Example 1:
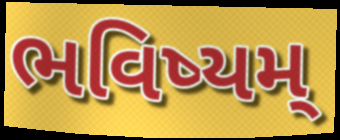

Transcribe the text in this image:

ભવિષ્યમ્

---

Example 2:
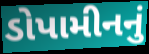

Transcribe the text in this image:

ડોપામીનનું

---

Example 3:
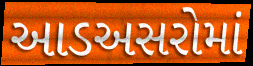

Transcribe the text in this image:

આડઅસરોમાં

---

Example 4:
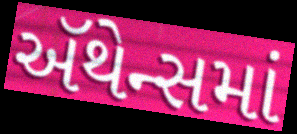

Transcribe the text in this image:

ઍથેન્સમાં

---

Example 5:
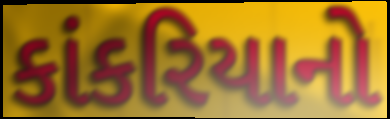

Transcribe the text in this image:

કાંકરિયાનો